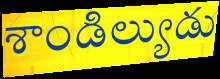
శాండిల్యుడు